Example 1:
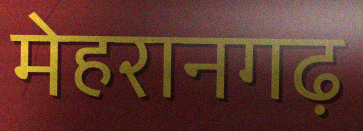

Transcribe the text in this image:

मेहरानगढ़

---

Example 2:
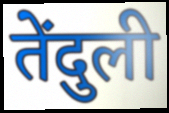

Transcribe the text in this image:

तेंदुली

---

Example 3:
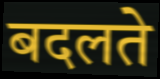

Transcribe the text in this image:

बदलते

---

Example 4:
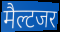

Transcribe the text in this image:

मैल्टजर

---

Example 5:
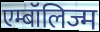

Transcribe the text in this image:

एम्बॉलिज्म